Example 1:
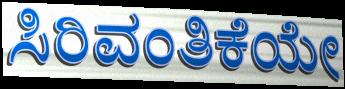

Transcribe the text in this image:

ಸಿರಿವಂತಿಕೆಯೇ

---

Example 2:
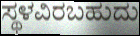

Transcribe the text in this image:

ಸ್ಥಳವಿರಬಹುದು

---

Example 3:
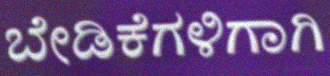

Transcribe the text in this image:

ಬೇಡಿಕೆಗಳಿಗಾಗಿ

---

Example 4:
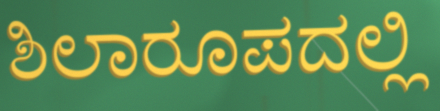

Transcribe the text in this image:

ಶಿಲಾರೂಪದಲ್ಲಿ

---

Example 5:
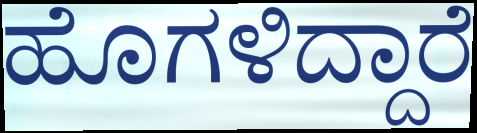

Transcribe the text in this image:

ಹೊಗಳಿದ್ದಾರೆ